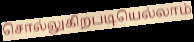
சொல்லுகிறபடியெல்லாம்